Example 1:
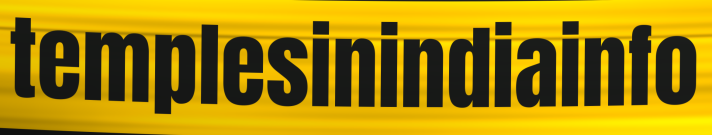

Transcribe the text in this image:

templesinindiainfo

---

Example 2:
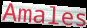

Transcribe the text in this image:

Amales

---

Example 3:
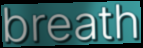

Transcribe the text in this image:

breath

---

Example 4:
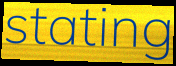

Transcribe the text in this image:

stating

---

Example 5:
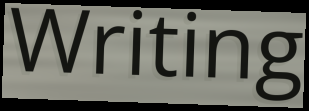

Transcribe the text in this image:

Writing